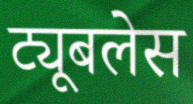
ट्यूबलेस